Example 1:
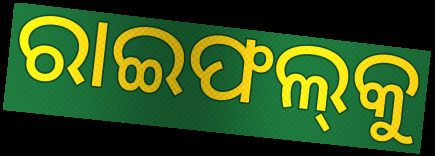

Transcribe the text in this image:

ରାଇଫଲ୍‍କୁ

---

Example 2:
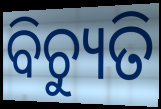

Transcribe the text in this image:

ବିଚ୍ୟୁତି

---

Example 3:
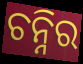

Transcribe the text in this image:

ଚନ୍ନିର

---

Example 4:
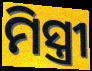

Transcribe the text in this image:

ମିସ୍ତ୍ରୀ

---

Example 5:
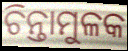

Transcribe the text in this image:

ଚିନ୍ତାମୁଳକ